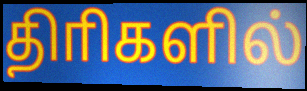
திரிகளில்